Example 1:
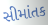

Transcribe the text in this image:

સીમાંતક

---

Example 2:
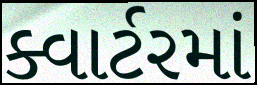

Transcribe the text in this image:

ક્વાર્ટરમાં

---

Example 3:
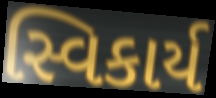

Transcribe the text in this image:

સ્વિકાર્ય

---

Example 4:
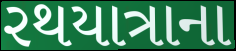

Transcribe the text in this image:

રથયાત્રાના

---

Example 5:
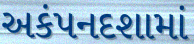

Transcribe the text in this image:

અકંપનદશામાં